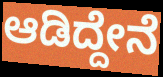
ಆಡಿದ್ದೇನೆ